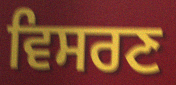
ਵਿਸਰਣ